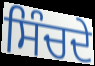
ਸਿੰਚਦੇ